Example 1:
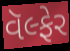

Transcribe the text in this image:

વૅલ્ફેર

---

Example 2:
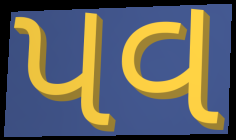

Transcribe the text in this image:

પવ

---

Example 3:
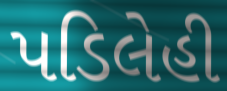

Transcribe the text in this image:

પડિલેહી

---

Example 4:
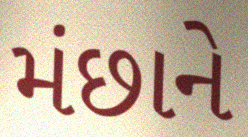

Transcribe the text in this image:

મંછાને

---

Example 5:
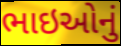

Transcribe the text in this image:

ભાઇઓનું